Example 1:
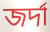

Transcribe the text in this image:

জর্দা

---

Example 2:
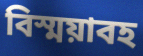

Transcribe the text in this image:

বিস্ময়াবহ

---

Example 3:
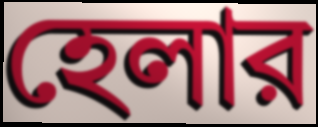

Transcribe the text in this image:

হেলার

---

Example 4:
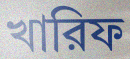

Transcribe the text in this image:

খারিফ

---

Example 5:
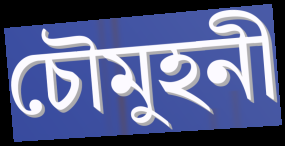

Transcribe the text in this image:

চৌমুহনী